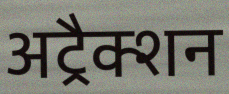
अट्रैक्शन